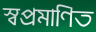
স্বপ্রমাণিত